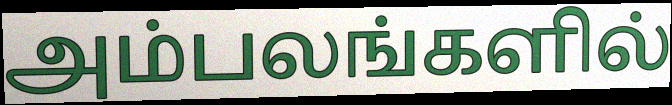
அம்பலங்களில்